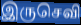
இருசெவி